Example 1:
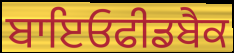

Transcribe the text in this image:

ਬਾਇਓਫੀਡਬੈਕ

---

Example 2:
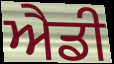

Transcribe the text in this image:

ਐਡੀ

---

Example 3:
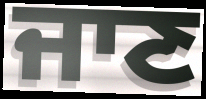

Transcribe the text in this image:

ਜਾਣ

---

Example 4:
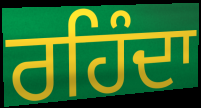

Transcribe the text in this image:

ਰਹਿੰਦਾ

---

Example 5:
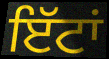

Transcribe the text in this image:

ਇੱਟਾਂ